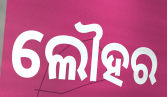
ଲୌହର